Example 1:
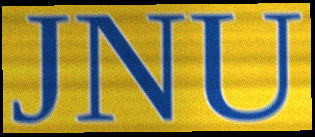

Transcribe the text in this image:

JNU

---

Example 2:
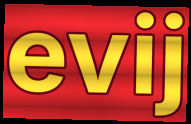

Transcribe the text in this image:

evij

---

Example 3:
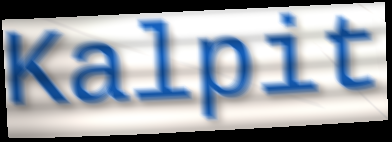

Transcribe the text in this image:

Kalpit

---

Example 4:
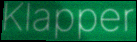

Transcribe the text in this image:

Klapper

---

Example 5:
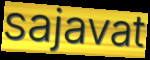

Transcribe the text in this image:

sajavat